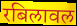
रबिलावल